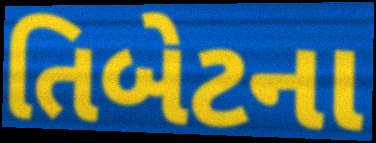
તિબેટના